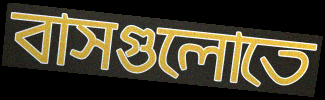
বাসগুলোতে